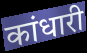
कांधारी